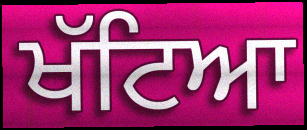
ਖੱਟਿਆ